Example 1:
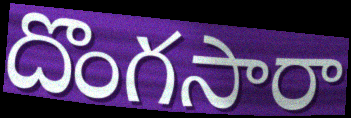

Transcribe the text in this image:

దొంగసారా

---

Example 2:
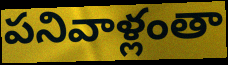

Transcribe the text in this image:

పనివాళ్లంతా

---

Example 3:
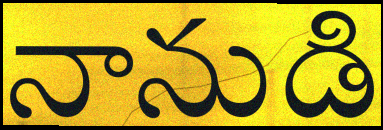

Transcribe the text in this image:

నానుడి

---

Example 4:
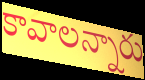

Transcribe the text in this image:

కావాలన్నారు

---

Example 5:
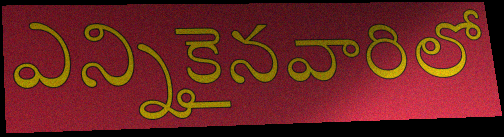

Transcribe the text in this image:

ఎన్నికైనవారిలో